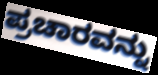
ಪ್ರಚಾರವನ್ನು